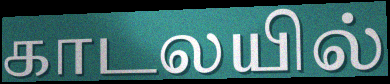
காடலயில்